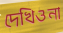
দেখিওনা